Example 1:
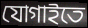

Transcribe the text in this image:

যোগাইতে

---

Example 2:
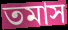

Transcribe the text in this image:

তমাস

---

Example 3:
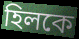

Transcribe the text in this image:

হিলকে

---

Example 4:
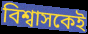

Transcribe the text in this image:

বিশ্বাসকেই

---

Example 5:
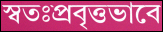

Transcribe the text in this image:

স্বতঃপ্রবৃত্তভাবে